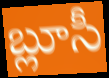
బ్లూసీ